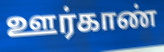
ஊர்காண்